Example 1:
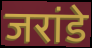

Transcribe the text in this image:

जरांडे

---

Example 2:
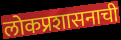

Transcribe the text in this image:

लोकप्रशासनाची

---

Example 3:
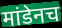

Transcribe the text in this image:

मांडेनच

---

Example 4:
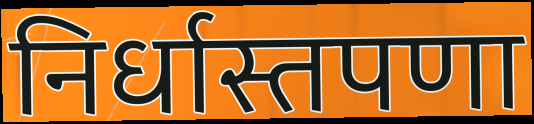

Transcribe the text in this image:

निर्धास्तपणा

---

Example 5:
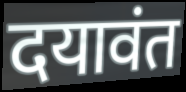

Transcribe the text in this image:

दयावंत